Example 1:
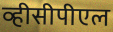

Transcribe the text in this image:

व्हीसीपीएल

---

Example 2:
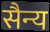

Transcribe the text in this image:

सैन्‍य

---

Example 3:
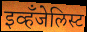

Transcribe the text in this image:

इव्हँजेलिस्ट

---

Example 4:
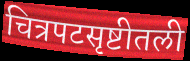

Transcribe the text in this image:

चित्रपटसृष्टीतली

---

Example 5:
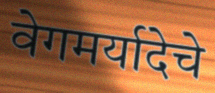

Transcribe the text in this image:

वेगमर्यादेचे